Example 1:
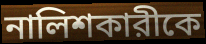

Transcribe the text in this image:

নালিশকারীকে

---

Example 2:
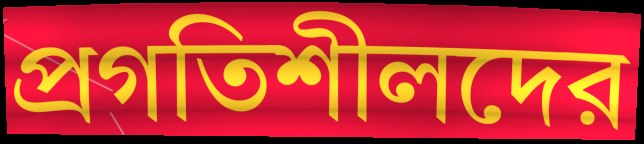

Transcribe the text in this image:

প্রগতিশীলদের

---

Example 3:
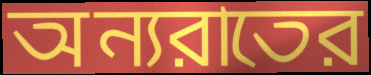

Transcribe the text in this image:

অন্যরাতের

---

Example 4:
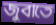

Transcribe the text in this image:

জুবাতে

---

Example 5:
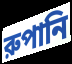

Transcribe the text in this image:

রুপানি